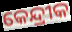
କେନ୍ଦ୍ରୀକ